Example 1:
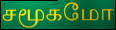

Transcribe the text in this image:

சமூகமோ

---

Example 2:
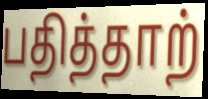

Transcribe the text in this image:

பதித்தாற்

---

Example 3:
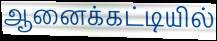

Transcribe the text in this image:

ஆனைக்கட்டியில்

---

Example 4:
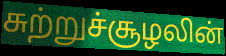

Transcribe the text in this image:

சுற்றுச்சூழலின்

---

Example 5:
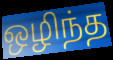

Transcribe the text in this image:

ஒழிந்த